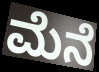
ಮೆನೆ